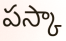
పస్కా